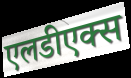
एलडीएक्स